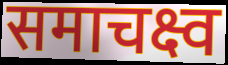
समाचक्ष्व